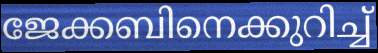
ജേക്കബിനെക്കുറിച്ച്